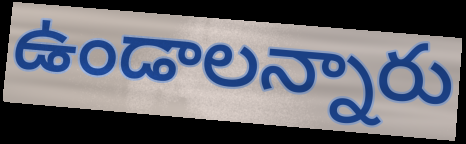
ఉండాలన్నారు